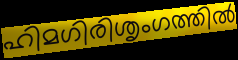
ഹിമഗിരിശൃംഗത്തിൽ